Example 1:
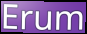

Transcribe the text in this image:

Erum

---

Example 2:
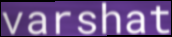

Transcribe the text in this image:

varshat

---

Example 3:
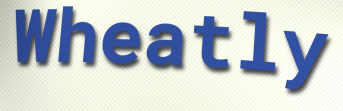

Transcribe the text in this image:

Wheatly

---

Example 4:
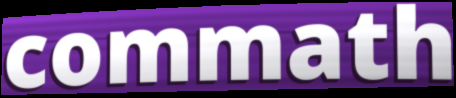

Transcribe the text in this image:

commath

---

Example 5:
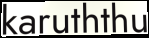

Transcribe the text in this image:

karuththu